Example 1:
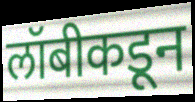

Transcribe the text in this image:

लॉबीकडून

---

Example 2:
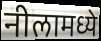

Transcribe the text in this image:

नीलामध्ये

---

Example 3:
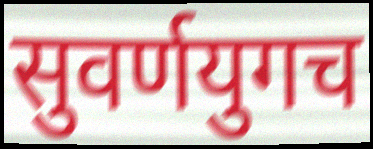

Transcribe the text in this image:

सुवर्णयुगच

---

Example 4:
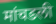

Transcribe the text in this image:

मांचडली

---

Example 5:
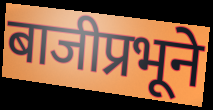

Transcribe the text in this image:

बाजीप्रभूने